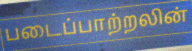
படைப்பாற்றலின்